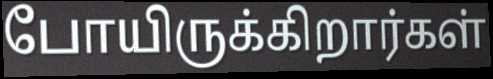
போயிருக்கிறார்கள்